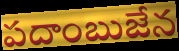
పదాంబుజేన